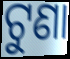
ଟୁଣା